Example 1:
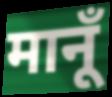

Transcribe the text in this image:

मानूँ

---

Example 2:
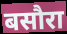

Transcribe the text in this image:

बसौरा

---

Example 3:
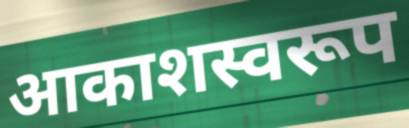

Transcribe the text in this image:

आकाशस्वरूप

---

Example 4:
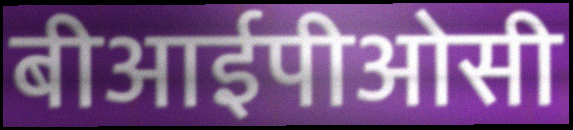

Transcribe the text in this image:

बीआईपीओसी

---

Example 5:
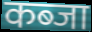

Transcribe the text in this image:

कब्‍जा